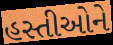
હસ્તીઓને